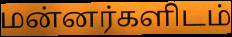
மன்னர்களிடம்